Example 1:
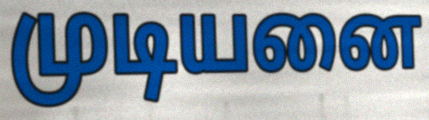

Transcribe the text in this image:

முடியனை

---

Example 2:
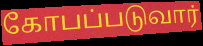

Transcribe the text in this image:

கோபப்படுவார்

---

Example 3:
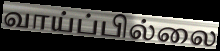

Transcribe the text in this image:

வாய்ப்பில்லை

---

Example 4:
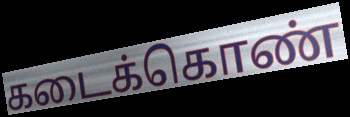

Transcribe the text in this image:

கடைக்கொண்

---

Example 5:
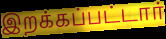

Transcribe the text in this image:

இறக்கப்பட்டார்